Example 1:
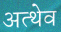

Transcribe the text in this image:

अत्थेव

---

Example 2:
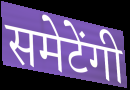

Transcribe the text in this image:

समेटेंगी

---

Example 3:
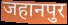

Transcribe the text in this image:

जहानपुर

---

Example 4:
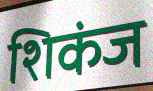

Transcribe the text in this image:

शिकंज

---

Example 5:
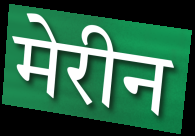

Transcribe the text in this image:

मेरीन